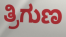
ತ್ರಿಗುಣ